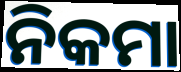
ନିକମା